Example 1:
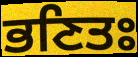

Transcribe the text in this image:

ਭਣਿਤਃ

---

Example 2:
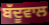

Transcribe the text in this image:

ਬੱਦੂਵਾਲ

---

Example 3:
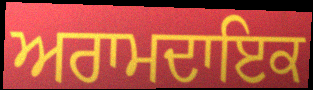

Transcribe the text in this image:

ਅਰਾਮਦਾਇਕ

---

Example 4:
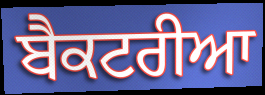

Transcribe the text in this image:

ਬੈਕਟਰੀਆ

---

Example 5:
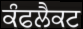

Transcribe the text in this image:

ਕੰਫਲੈਕਟ